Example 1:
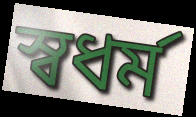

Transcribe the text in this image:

স্বধর্ম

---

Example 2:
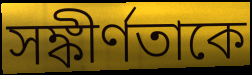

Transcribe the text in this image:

সঙ্কীর্ণতাকে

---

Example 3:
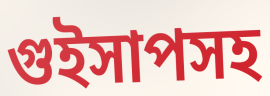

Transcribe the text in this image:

গুইসাপসহ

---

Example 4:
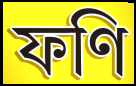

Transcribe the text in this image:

ফণি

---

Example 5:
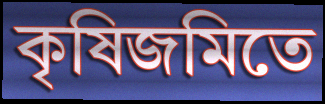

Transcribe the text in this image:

কৃষিজমিতে